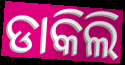
ଡାକିଲି